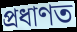
প্রধাণত